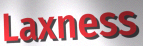
Laxness